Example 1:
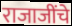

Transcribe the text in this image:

राजाजींचे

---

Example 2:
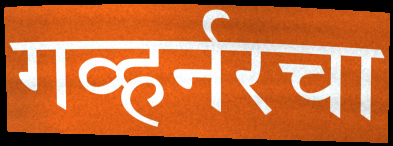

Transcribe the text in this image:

गव्हर्नरचा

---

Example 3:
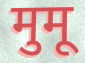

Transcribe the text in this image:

मुमू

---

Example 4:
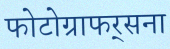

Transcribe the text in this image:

फोटोग्राफर्सना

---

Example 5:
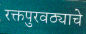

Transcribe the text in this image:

रक्तपुरवठ्याचे